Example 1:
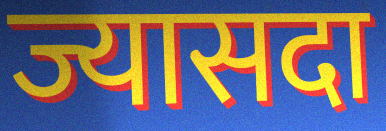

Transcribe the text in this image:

ज्यासदा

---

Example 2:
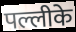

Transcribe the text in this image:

पल्लीके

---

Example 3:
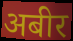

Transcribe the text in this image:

अबीर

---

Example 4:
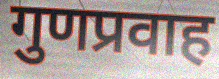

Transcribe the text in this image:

गुणप्रवाह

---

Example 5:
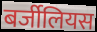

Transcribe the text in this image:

बर्जीलियस